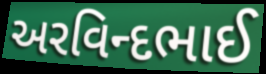
અરવિન્દભાઈ